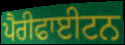
ਪੈਰੀਫਾਈਟਨ